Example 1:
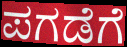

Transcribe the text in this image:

ಪಗಡೆಗೆ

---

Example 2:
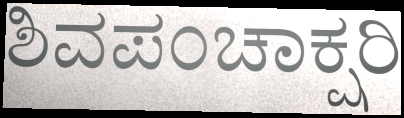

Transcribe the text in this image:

ಶಿವಪಂಚಾಕ್ಷರಿ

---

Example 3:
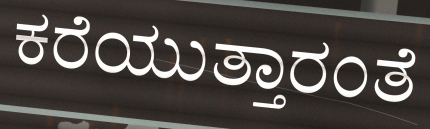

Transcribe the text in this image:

ಕರೆಯುತ್ತಾರಂತೆ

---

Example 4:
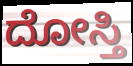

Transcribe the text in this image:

ದೋಸ್ತಿ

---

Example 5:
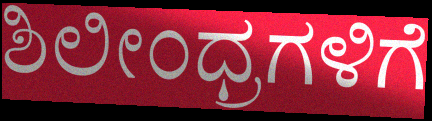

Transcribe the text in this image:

ಶಿಲೀಂಧ್ರಗಳಿಗೆ